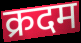
क्रदम